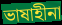
ভাষাহীনা